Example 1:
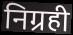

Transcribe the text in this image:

निग्रही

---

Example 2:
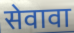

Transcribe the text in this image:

सेवावा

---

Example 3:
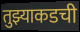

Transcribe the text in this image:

तुझ्याकडची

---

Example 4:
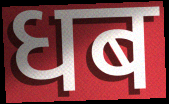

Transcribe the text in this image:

धब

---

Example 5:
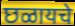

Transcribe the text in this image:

छळायचे